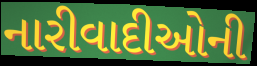
નારીવાદીઓની